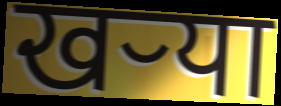
खऱ्या